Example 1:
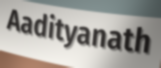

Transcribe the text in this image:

Aadityanath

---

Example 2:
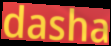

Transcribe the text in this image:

dasha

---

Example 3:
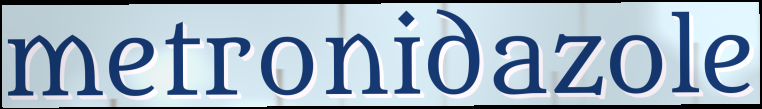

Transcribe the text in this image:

metronidazole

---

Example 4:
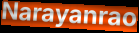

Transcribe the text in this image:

Narayanrao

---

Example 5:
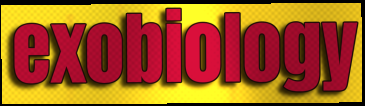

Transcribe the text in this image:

exobiology